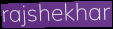
rajshekhar